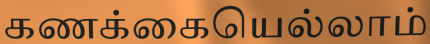
கணக்கையெல்லாம்